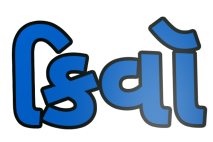
કિવૉ